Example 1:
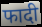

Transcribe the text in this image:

फादी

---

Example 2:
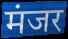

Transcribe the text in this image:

मंजर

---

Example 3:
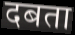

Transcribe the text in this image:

दबता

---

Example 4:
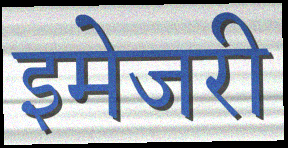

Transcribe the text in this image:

इमेजरी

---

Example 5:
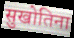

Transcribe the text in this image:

सुखोतिना